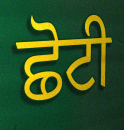
ਛੋਟੀ